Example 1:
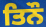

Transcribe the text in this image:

ਤਿਨੌ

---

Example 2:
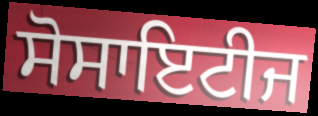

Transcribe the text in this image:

ਸੋਸਾਇਟੀਜ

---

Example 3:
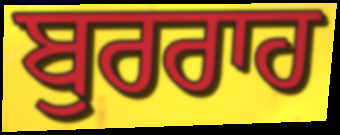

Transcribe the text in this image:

ਬੁਰਰਾਹ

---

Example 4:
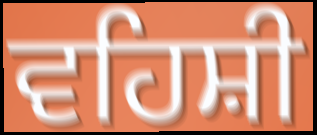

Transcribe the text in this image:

ਵਹਿਸ਼ੀ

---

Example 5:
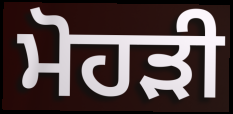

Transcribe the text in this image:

ਮੋਹੜੀ